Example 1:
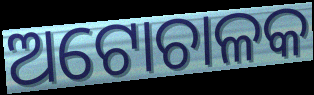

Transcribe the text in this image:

ଅଟୋଚାଳକ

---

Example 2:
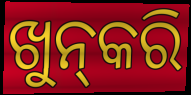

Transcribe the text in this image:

ଖୁନ୍‍କରି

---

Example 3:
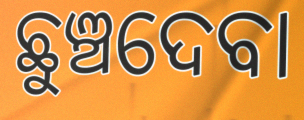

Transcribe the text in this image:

ଛୁଞ୍ଚଦେବା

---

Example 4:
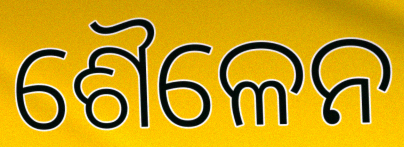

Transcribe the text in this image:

ଶୈଳେନ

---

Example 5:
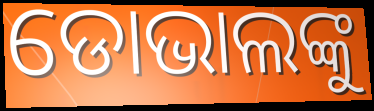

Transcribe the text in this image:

ଡୋଭାଲଙ୍କୁ